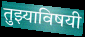
तुझ्याविषयी